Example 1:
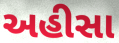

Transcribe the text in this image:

અહીસા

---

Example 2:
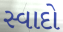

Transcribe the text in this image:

સ્વાદો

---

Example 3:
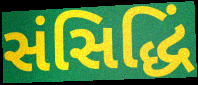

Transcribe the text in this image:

સંસિદ્ધિં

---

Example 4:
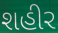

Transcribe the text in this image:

શહીર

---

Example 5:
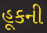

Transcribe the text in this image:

હૂકની